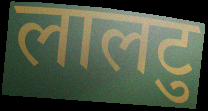
लालटु